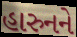
હારુનને